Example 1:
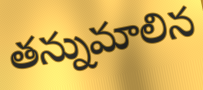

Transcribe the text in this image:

తన్నుమాలిన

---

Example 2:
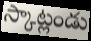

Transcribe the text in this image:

స్కాట్లండు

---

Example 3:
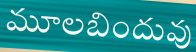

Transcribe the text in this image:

మూలబిందువు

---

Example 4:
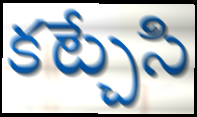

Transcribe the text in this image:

కట్చేసి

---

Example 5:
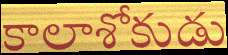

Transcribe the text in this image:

కాలాశోకుడు